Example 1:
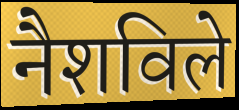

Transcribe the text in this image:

नैशविले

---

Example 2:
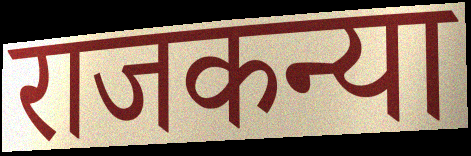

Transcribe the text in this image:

राजकन्या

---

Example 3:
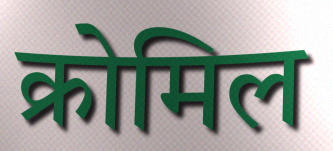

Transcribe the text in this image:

क्रोमिल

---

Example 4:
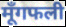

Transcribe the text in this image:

मूँगफली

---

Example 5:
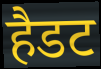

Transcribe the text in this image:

हैडट